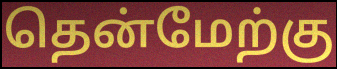
தென்மேற்கு